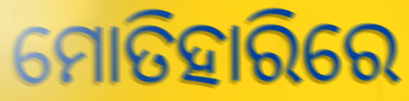
ମୋତିହାରିରେ